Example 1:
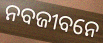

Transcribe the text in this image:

ନବଜୀବନେ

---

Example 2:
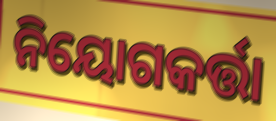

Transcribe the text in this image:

ନିୟୋଗକର୍ତ୍ତା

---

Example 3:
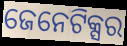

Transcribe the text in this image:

ଜେନେଟିକ୍ସର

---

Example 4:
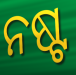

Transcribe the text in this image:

ନଷ୍ଟ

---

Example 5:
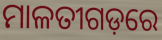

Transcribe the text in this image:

ମାଳତୀଗଡ଼ରେ